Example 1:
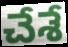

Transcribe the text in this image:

చేశే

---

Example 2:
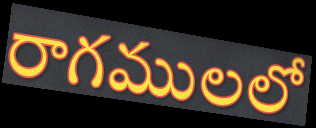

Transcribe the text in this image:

రాగములలో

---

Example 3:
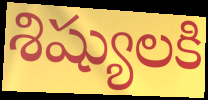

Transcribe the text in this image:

శిష్యులకి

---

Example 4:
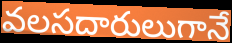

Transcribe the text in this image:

వలసదారులుగానే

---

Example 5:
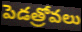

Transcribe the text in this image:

పెడత్రోవలు